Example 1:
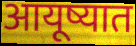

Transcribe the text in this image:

आयूष्यात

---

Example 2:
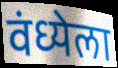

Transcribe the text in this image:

वंध्येला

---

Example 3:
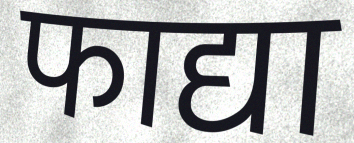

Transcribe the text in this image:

फाद्या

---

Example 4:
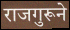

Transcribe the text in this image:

राजगुरूने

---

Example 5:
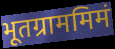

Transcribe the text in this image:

भूतग्राममिमं